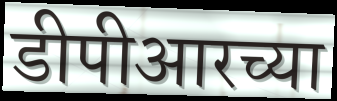
डीपीआरच्या